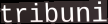
tribuni